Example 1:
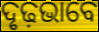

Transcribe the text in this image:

ଦୃଢ଼ଭାବେ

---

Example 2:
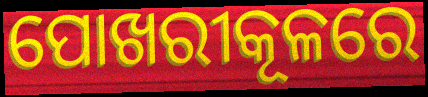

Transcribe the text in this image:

ପୋଖରୀକୂଳରେ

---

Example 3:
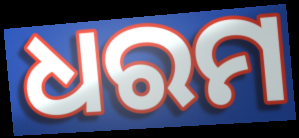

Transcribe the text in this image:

ଧରମ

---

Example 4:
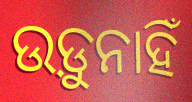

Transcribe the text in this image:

ଉଡ଼ୁନାହିଁ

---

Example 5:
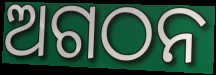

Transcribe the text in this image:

ଅଗଠନ